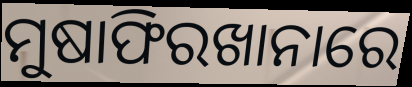
ମୁଷାଫିରଖାନାରେ